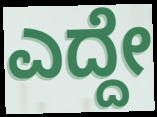
ಎದ್ದೇ